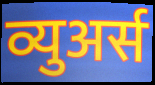
व्युअर्स